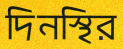
দিনস্থির